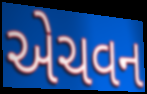
એચવન